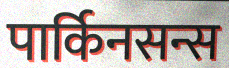
पार्किनसन्स